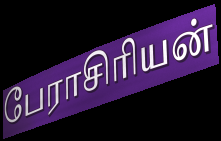
பேராசிரியன்